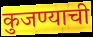
कुजण्याची